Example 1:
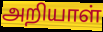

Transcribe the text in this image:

அறியாள்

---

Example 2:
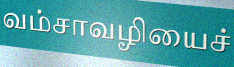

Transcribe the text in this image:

வம்சாவழியைச்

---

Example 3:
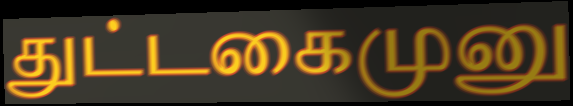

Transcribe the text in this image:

துட்டகைமுனு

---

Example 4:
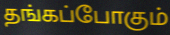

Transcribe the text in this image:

தங்கப்போகும்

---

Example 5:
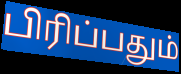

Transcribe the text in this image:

பிரிப்பதும்